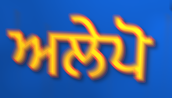
ਅਲੇਪੋ